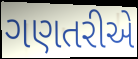
ગણતરીએ